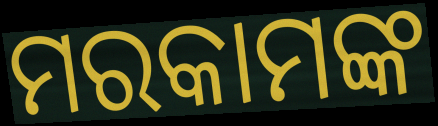
ମରକାମଙ୍କ